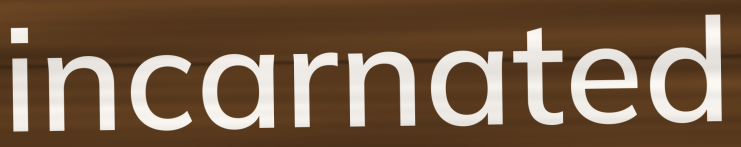
incarnated